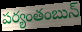
పర్యంతంబున్